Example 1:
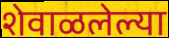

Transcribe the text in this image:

शेवाळलेल्या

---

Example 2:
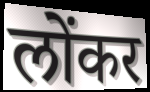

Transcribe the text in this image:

लोंकर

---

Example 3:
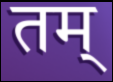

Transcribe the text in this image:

तम्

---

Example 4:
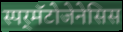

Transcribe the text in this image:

स्पर्मॅटोजेनेसिस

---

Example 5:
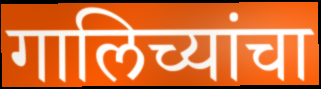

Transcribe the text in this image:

गालिच्यांचा